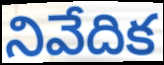
నివేదిక